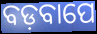
ବଡ଼ବାପେ